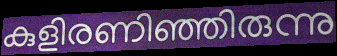
കുളിരണിഞ്ഞിരുന്നു